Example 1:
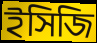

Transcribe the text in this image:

ইসিজি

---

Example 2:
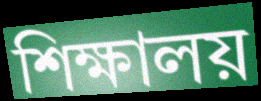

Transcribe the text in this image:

শিক্ষালয়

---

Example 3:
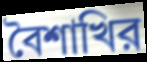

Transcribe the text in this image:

বৈশাখির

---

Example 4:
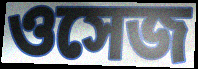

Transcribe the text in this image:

ওসেজ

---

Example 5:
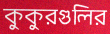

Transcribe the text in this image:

কুকুরগুলির